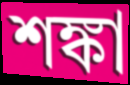
শঙ্কা